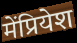
मेंप्रियेश